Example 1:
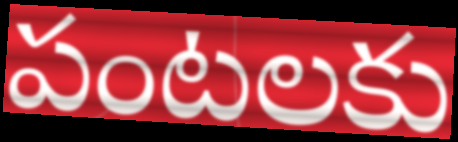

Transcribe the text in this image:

పంటలకు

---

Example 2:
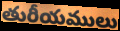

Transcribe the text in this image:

తురీయములు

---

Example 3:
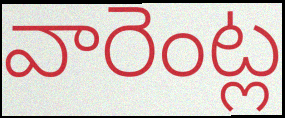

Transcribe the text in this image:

వారెంట్ల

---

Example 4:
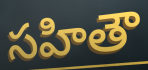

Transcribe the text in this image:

సహితౌ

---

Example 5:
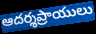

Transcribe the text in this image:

ఆదర్శప్రాయులు